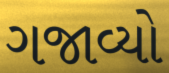
ગજાવ્યો